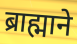
ब्राह्माने